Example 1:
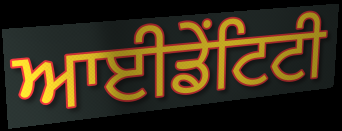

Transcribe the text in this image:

ਆਈਡੇਂਟਿਟੀ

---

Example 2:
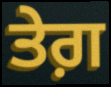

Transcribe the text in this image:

ਤੇਗ਼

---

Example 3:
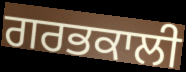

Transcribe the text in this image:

ਗਰਭਕਾਲੀ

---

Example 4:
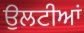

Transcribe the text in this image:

ਉਲਟੀਆਂ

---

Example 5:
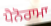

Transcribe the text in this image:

ਪੈਨੋਰਾਮਾ